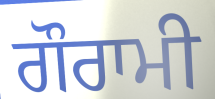
ਗੌਰਾਮੀ